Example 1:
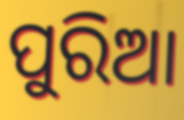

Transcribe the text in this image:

ପୁରିଆ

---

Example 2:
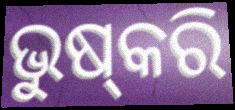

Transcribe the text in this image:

ଭୁଷ୍‍କରି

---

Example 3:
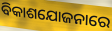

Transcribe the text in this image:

ବିକାଶଯୋଜନାରେ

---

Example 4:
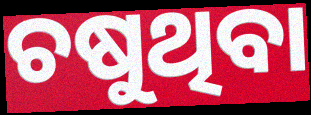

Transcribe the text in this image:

ଚଷୁଥିବା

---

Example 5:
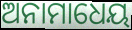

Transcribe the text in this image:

ଅନାମାଧେୟ